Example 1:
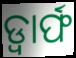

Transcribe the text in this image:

ଡ୍ୱାର୍ଫ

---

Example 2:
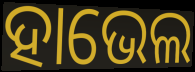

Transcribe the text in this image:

ହାଭେଲ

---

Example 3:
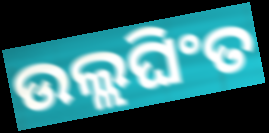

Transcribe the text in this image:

ଉଲ୍ଲଘିଂତ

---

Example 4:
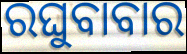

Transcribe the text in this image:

ରଘୁବାବାର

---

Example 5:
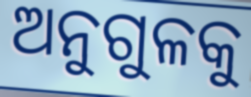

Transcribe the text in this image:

ଅନୁଗୁଳକୁ